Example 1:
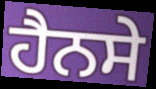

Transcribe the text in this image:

ਹੈਨਸੇ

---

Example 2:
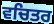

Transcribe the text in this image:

ਵਚਿਤਰ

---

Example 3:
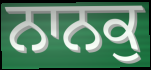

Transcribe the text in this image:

ਨਾਨਕੁ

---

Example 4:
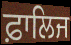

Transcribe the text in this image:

ਫ਼ਾਲਿਜ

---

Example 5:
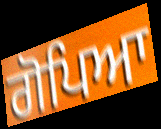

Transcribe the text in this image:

ਗੋਪਿਆ